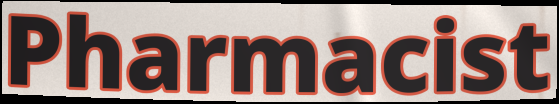
Pharmacist